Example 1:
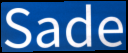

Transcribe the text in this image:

Sade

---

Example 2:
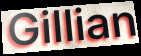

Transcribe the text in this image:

Gillian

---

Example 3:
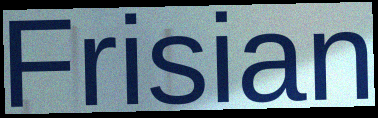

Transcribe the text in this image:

Frisian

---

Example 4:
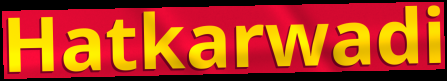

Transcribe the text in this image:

Hatkarwadi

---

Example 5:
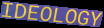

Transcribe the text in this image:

IDEOLOGY